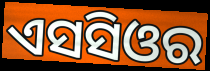
ଏସସିଓର